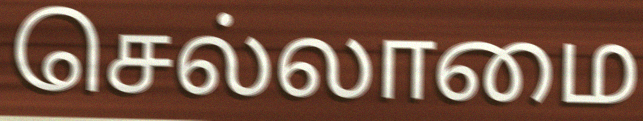
செல்லாமை